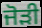
ਜੋੜੀ